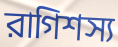
রাগিশস্য